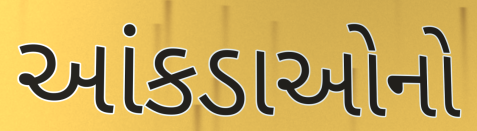
આંકડાઓનો